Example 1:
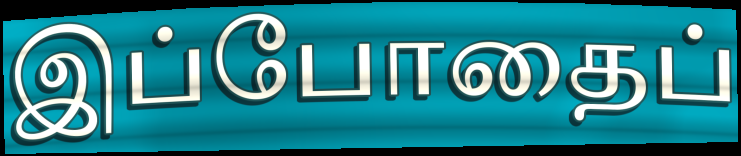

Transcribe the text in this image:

இப்போதைப்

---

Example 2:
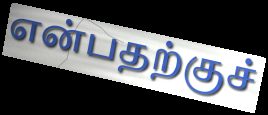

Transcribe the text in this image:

என்பதற்குச்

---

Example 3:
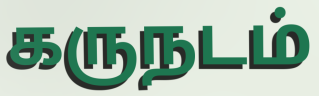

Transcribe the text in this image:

கருநடம்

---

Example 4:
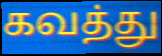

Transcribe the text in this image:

கவத்து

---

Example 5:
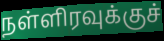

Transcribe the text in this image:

நள்ளிரவுக்குச்